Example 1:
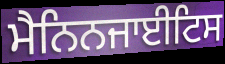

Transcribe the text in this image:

ਮੈਨਿਨਜਾਈਟਿਸ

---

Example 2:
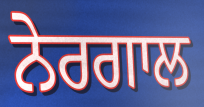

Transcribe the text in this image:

ਨੇਰਗਾਲ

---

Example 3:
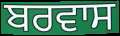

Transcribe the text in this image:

ਬਰਵਾਸ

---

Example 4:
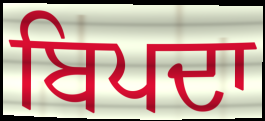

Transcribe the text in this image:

ਬਿਪਦਾ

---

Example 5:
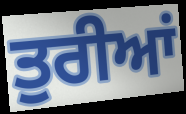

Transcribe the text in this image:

ਤੁਰੀਆਂ